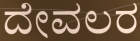
ದೇವಲರ